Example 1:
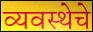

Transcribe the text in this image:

व्यवस्थेचे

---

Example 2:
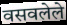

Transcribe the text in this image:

वसवलेले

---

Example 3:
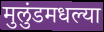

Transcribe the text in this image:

मुलुंडमधल्या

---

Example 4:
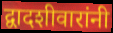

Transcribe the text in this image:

द्वादशीवारांनी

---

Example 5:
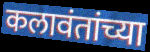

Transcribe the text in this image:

कलावंतांच्या